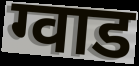
ग्वाड